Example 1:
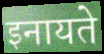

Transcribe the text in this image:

इनायते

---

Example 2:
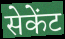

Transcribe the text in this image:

सेकेंट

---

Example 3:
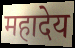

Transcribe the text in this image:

महादेय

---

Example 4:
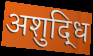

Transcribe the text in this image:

अशुद्धि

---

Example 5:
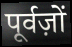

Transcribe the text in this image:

पूर्वज़ों